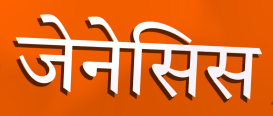
जेनेसिस